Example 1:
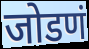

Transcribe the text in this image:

जोडणं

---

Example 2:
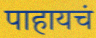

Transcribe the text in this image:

पाहायचं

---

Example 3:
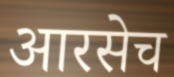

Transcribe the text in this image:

आरसेच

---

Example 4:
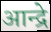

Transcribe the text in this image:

आन्द्रे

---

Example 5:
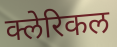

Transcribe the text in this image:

क्लेरिकल